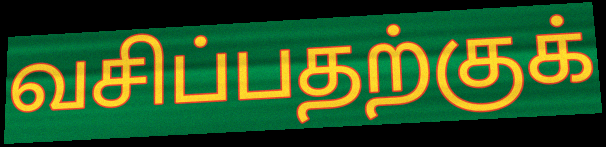
வசிப்பதற்குக்